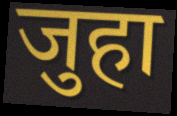
जुहा